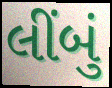
લીંબું